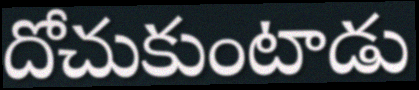
దోచుకుంటాడు